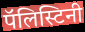
पॅलिस्टिनी